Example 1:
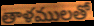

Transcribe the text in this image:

తాళములతో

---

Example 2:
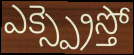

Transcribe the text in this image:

ఎక్స్ప్రెస్తో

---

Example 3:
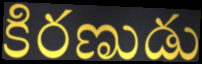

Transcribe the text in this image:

కిరణుడు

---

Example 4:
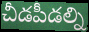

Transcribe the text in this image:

చీడపీడల్ని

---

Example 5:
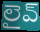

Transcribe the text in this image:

లైవ్